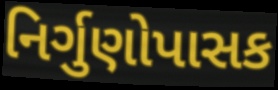
નિર્ગુણોપાસક